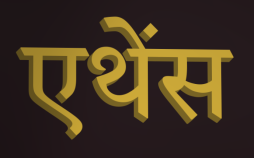
एथेंस